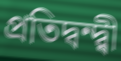
প্ৰতিদ্বন্দ্ব্বী